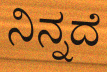
ನಿನ್ನದೆ